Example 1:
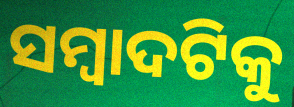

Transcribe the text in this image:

ସମ୍ୱାଦଟିକୁ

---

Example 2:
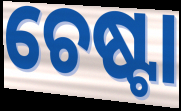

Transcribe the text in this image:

ଚେଷ୍ଟା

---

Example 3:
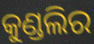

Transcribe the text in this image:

କୁଣ୍ଡଲିର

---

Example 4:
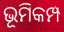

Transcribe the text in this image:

ଭୂମିକମ୍ପ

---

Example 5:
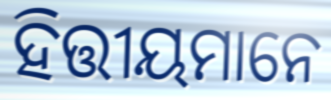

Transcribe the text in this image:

ହିତ୍ତୀୟମାନେ